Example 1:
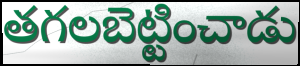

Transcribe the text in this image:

తగలబెట్టించాడు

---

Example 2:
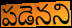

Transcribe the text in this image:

పడెనని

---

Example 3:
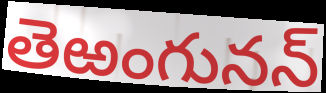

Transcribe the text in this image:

తెఱంగునన్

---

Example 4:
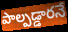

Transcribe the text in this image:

పాల్పడ్డారనే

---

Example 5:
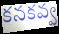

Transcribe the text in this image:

కనకవ్వ